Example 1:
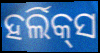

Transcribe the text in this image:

ହର୍ଲିକ୍‌ସ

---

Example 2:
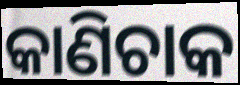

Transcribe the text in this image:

କାଣିଚାକ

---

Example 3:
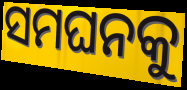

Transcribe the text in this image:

ସମଘନକୁ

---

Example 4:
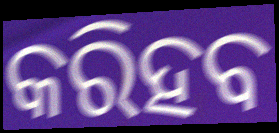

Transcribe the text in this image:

କରିହବ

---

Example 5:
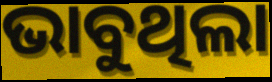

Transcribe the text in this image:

ଭାବୁଥିଲା